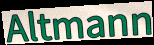
Altmann